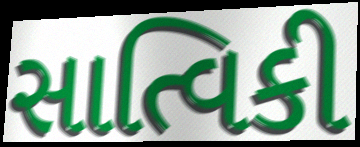
સાત્વિકી